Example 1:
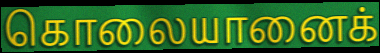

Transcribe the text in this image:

கொலையானைக்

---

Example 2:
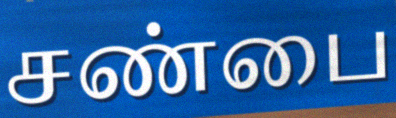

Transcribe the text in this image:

சண்பை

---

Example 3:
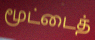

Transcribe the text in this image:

மூட்டைத்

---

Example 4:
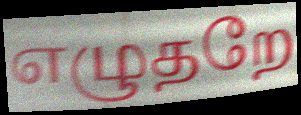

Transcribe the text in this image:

எழுதறே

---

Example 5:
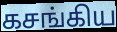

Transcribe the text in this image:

கசங்கிய